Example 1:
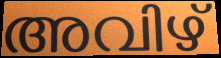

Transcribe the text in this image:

അവിഴ്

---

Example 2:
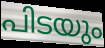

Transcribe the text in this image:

പിടയും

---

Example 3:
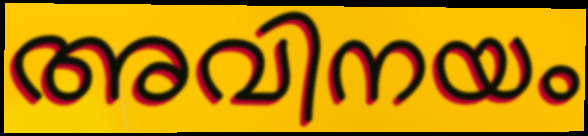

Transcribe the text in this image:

അവിനയം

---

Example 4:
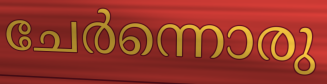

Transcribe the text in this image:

ചേർന്നൊരു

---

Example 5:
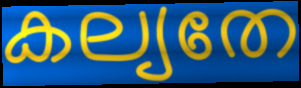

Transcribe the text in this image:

കല്യതേ